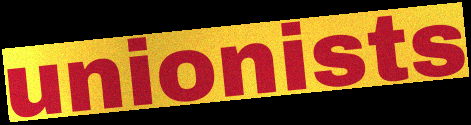
unionists